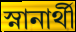
স্নানার্থী